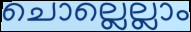
ചൊല്ലെല്ലാം